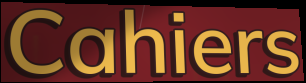
Cahiers